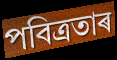
পবিত্ৰতাৰ